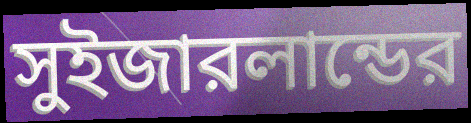
সুইজারলান্ডের